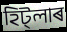
হিট্‌লাৰ